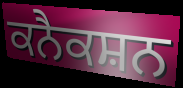
ਕਨੈਕਸ਼ਨ